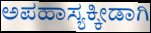
ಅಪಹಾಸ್ಯಕ್ಕೀಡಾಗಿ